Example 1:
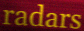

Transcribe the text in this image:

radars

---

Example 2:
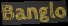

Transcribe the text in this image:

Banglo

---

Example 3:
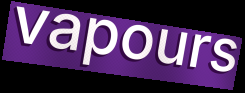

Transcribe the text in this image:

vapours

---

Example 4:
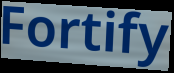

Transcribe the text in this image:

Fortify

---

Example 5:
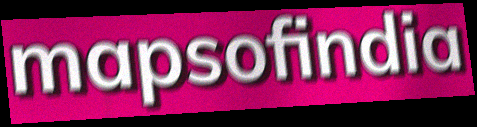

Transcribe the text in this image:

mapsofindia